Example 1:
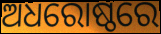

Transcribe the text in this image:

ଅଧରୋଷ୍ଠରେ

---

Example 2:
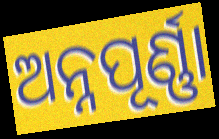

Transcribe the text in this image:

ଅନ୍ନପୂର୍ଣ୍ଣା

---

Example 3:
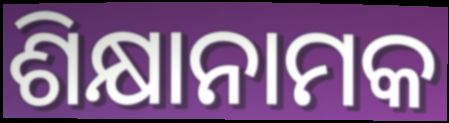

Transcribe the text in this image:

ଶିକ୍ଷାନାମକ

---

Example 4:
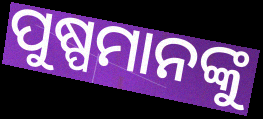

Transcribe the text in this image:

ପୁଷ୍ପମାନଙ୍କୁ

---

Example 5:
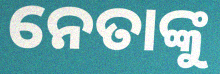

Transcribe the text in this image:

ନେତାଙ୍କୁ